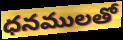
ధనములతో